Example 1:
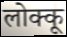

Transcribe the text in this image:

लोक्कू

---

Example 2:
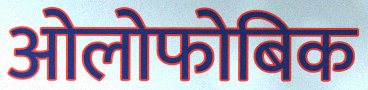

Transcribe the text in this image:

ओलोफोबिक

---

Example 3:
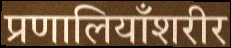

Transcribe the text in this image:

प्रणालियाँशरीर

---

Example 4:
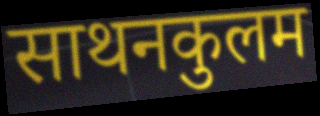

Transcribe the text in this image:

साथनकुलम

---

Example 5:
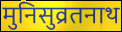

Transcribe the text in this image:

मुनिसुव्रतनाथ